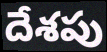
దేశపు